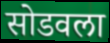
सोडवला